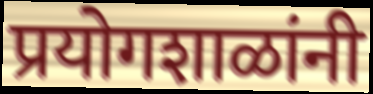
प्रयोगशाळांनी